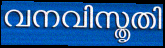
വനവിസ്തൃതി